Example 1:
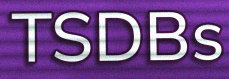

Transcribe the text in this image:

TSDBs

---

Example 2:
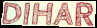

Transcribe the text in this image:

DIHAR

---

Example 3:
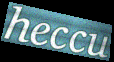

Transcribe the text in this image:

heccu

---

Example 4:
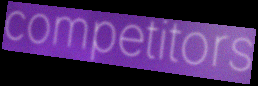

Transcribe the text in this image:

competitors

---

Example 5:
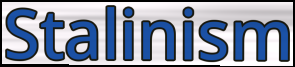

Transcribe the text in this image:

Stalinism